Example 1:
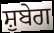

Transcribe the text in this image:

ਸ਼ੁਬੇਗ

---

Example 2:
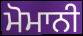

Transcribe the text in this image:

ਮੋਮਾਨੀ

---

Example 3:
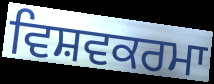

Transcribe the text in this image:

ਵਿਸ਼ਵਕਰਮਾ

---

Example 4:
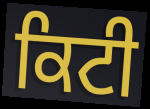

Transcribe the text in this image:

ਕਿਟੀ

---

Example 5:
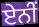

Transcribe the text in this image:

ਏਨੀਂ